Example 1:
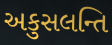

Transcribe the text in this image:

અકુસલન્તિ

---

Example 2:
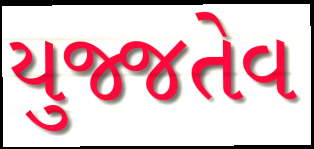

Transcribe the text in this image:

યુજ્જતેવ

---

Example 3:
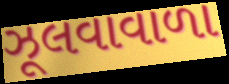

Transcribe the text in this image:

ઝૂલવાવાળા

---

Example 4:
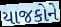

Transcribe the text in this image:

યાજકોને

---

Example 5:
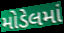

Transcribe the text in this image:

મોડેલમાં